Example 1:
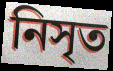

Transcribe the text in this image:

নিসৃত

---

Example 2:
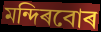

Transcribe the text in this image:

মন্দিৰবোৰ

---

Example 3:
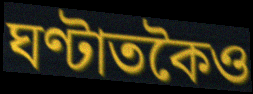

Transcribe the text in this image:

ঘণ্টাতকৈও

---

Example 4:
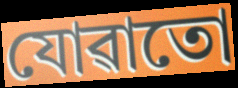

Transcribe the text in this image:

যোৱাতো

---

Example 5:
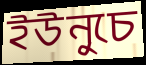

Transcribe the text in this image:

ইউনুচে